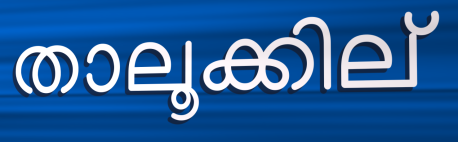
താലൂക്കില്